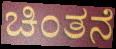
ಚಿಂತನೆ